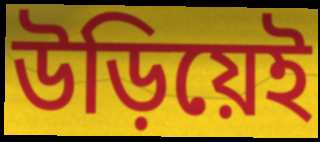
উড়িয়েই